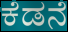
ಕೆಡನೆ